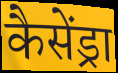
कैसेंड्रा